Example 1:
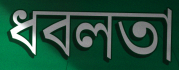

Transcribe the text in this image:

ধবলতা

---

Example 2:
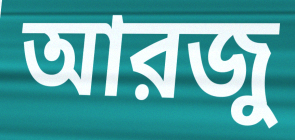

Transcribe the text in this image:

আরজু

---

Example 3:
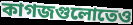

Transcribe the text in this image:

কাগজগুলোতেও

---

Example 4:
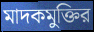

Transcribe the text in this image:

মাদকমুক্তির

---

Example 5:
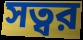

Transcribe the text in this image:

সত্বর